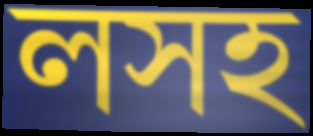
লসহ